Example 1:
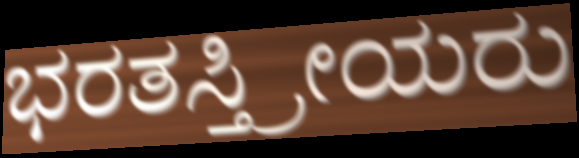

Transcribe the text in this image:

ಭರತಸ್ತ್ರೀಯರು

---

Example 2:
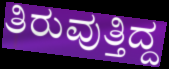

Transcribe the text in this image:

ತಿರುವುತ್ತಿದ್ದ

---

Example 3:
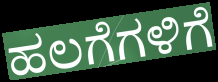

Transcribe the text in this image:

ಹಲಗೆಗಳಿಗೆ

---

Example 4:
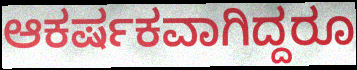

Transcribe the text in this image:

ಆಕರ್ಷಕವಾಗಿದ್ದರೂ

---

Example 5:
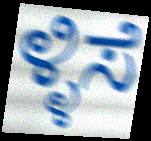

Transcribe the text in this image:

ಳ್ಳಿಸೆ